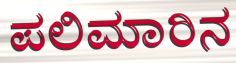
ಪಲಿಮಾರಿನ